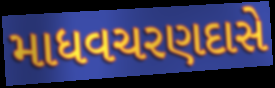
માધવચરણદાસે